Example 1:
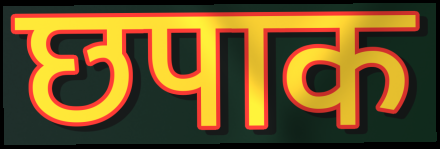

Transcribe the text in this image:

छपाक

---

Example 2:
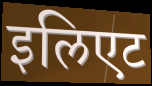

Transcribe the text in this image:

इलिएट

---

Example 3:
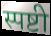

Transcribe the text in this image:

स्पष्टी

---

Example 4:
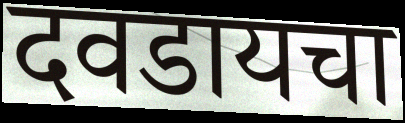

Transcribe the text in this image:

दवडायचा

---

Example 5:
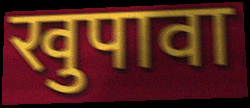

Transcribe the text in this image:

खुपावा